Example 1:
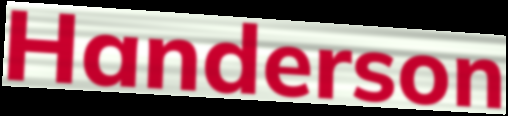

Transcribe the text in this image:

Handerson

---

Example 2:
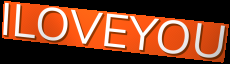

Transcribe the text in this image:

ILOVEYOU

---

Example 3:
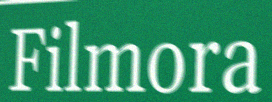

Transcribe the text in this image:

Filmora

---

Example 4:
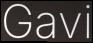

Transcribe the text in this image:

Gavi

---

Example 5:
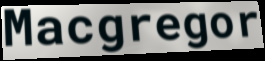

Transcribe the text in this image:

Macgregor